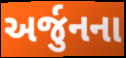
અર્જુનના